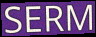
SERM